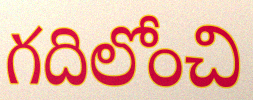
గదిలోంచి